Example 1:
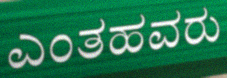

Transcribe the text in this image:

ಎಂತಹವರು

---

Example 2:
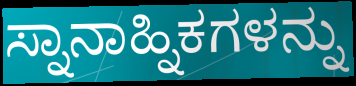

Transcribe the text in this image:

ಸ್ನಾನಾಹ್ನಿಕಗಳನ್ನು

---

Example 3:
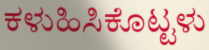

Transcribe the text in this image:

ಕಳುಹಿಸಿಕೊಟ್ಟಳು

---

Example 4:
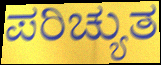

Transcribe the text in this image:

ಪರಿಚ್ಯುತ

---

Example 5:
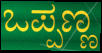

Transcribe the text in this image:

ಒಪ್ಪಣ್ಣ